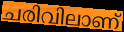
ചരിവിലാണ്